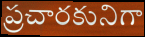
ప్రచారకునిగా